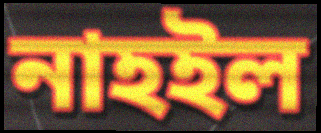
নাহইল